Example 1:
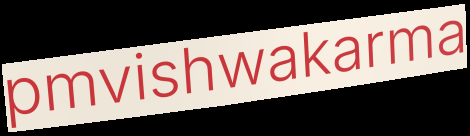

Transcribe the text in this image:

pmvishwakarma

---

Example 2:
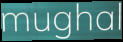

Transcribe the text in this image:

mughal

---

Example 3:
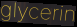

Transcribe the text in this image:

glycerin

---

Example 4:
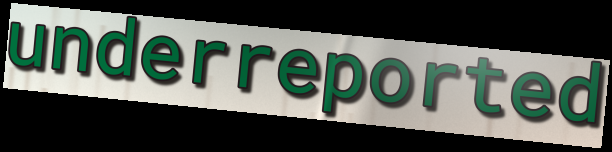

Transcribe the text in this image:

underreported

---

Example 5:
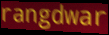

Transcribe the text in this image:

rangdwar